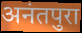
अनंतपुरा